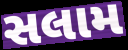
સલામ